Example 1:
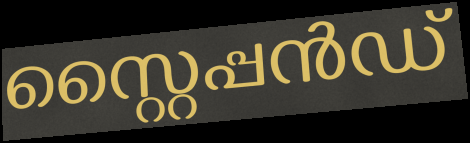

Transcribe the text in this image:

സ്റ്റൈപ്പൻഡ്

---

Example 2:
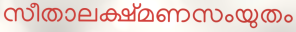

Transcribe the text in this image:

സീതാലക്ഷ്മണസംയുതം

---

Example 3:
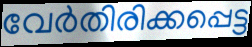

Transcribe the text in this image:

വേർതിരിക്കപ്പെട്ട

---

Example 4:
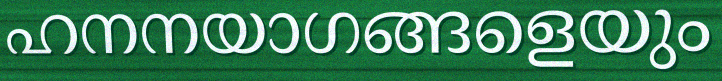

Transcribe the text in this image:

ഹനനയാഗങ്ങളെയും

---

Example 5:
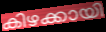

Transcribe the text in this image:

കിഴക്കായി